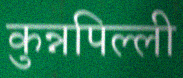
कुन्नपिल्ली